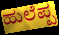
ಹುಲೆಪ್ಪ